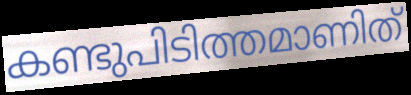
കണ്ടുപിടിത്തമാണിത്